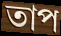
তাপ